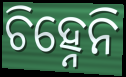
ଚିହ୍ନେନି